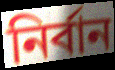
নির্বান